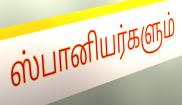
ஸ்பானியர்களும்